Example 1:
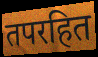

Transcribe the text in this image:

तपरहित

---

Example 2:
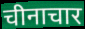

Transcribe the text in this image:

चीनाचार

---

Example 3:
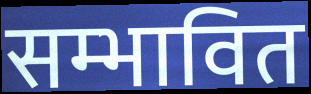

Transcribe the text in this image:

सम्भावित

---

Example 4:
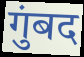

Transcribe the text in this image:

गुंबद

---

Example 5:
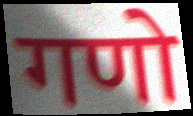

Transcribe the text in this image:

गणो